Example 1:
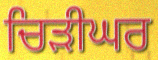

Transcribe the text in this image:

ਚਿੜੀਘਰ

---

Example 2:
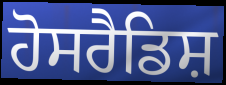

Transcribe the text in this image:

ਹੋਸਰੈਡਿਸ਼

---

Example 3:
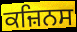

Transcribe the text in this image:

ਕਜ਼ਿਨਸ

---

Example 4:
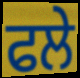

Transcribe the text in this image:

ਫਲੇ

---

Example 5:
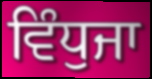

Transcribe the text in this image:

ਵਿੰਧੁਜਾ